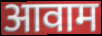
आवाम